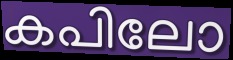
കപിലോ